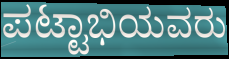
ಪಟ್ಟಾಭಿಯವರು